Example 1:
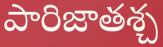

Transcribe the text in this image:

పారిజాతశ్చ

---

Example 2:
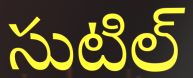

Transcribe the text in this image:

సుటిల్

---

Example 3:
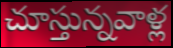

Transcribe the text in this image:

చూస్తున్నవాళ్ల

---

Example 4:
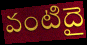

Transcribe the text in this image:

వంటిదై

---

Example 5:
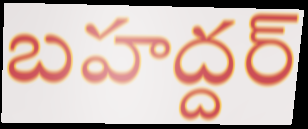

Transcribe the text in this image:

బహద్దర్